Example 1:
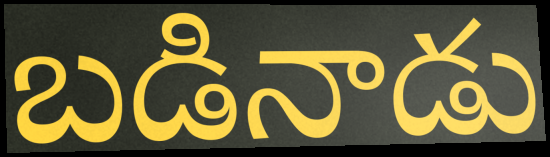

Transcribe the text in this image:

బడినాడు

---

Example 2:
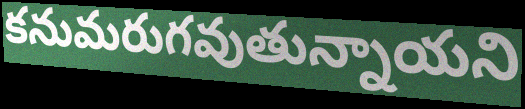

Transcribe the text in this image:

కనుమరుగవుతున్నాయని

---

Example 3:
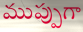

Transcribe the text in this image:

ముప్పుగా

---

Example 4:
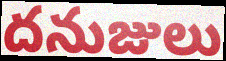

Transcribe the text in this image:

దనుజులు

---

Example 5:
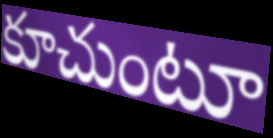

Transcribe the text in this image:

కూచుంటూ